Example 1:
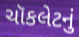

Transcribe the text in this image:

ચૉકલેટનું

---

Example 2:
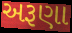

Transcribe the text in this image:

અરૂણા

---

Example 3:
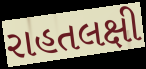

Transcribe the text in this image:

રાહતલક્ષી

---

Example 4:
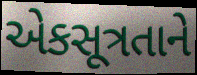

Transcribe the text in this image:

એકસૂત્રતાને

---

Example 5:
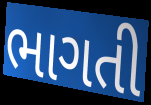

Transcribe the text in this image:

ભાગતી